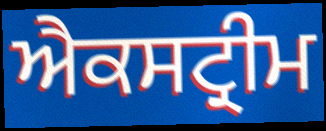
ਐਕਸਟ੍ਰੀਮ